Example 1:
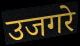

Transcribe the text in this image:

उजगरे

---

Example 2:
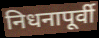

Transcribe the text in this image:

निधनापूर्वी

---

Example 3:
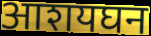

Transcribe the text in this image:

आशयघन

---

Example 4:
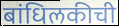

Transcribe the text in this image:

बांधिलकीची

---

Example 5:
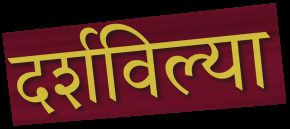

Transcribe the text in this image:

दर्शविल्या